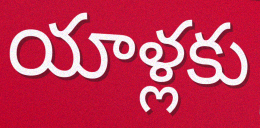
యాళ్లకు